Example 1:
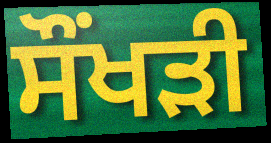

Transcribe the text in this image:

ਸੌਂਖੜੀ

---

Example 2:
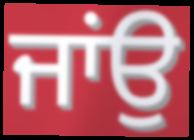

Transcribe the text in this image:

ਜਾਂਉ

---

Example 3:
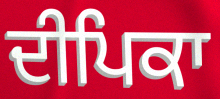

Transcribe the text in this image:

ਦੀਪਿਕਾ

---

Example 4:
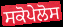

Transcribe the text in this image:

ਸਕੋਪੇਲੋਸ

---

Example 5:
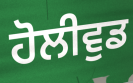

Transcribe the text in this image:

ਹੋਲੀਵੁਡ